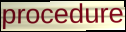
procedure